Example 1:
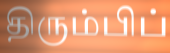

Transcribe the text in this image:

திரும்பிப்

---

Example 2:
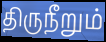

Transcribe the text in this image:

திருநீறும்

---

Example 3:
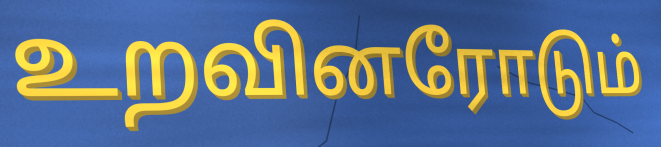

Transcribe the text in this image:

உறவினரோடும்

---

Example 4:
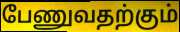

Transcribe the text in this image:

பேணுவதற்கும்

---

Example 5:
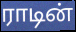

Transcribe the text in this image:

ராடின்